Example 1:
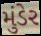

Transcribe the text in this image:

મુંડેર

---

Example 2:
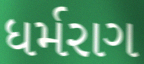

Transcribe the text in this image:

ધર્મરાગ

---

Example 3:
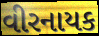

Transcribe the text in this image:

વીરનાયક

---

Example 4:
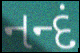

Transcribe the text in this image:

નન્દં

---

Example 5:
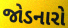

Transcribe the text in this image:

જોડનારો